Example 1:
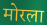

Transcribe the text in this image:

मोरला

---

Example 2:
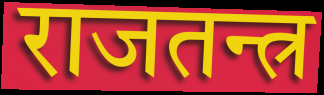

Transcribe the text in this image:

राजतन्त्र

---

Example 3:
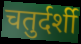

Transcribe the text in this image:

चतुर्दर्शी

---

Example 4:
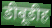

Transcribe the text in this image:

डीबूडीह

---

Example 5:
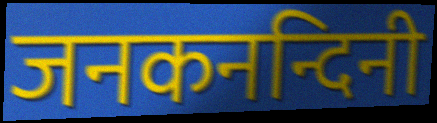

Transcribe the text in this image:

जनकनन्दिनी